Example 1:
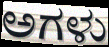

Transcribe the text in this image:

ಅಗಳು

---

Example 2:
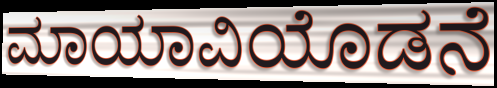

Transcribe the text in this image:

ಮಾಯಾವಿಯೊಡನೆ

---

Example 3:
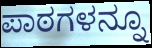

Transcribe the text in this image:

ಪಾಠಗಳನ್ನೂ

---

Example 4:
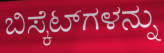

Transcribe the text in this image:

ಬಿಸ್ಕೆಟ್‌ಗಳನ್ನು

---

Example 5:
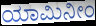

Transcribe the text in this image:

ಯಾಮಿನೀಂ